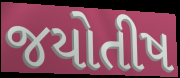
જયોતીષ